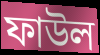
ফাউল